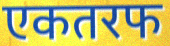
एकतरफ